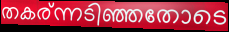
തകര്ന്നടിഞ്ഞതോടെ